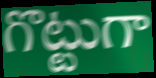
గొట్టుగా